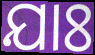
ଯାଃ